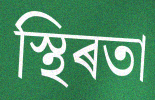
স্থিৰতা